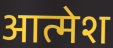
आत्मेश